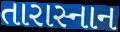
તારાસ્નાન